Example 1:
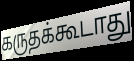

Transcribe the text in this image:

கருதக்கூடாது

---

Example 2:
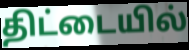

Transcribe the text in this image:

திட்டையில்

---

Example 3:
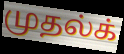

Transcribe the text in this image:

முதல்க்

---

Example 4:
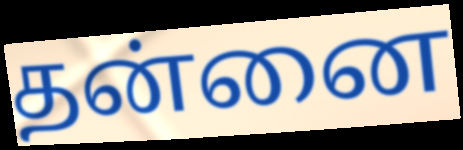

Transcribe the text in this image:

தன்னை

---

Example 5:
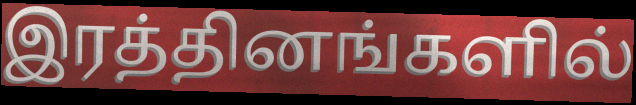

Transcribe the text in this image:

இரத்தினங்களில்